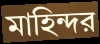
মাহিন্দর